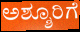
ಅಶ್ಶೂರಿಗೆ